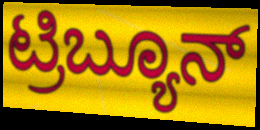
ಟ್ರಿಬ್ಯೂನ್